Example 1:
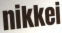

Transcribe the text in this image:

nikkei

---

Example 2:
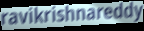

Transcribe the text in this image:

ravikrishnareddy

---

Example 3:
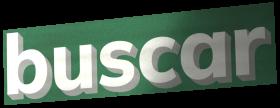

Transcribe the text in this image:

buscar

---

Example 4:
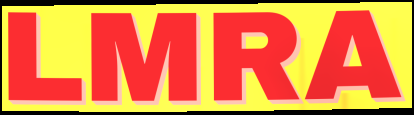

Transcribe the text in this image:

LMRA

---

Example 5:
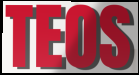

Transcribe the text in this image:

TEOS